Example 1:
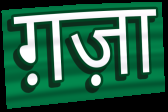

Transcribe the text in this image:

ग़ज़ा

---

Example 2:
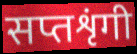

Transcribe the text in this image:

सप्तशृंगी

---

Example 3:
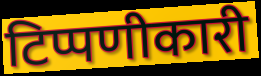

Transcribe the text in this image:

टिप्पणीकारी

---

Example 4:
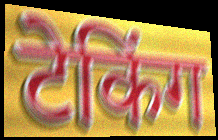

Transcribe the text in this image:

टेकिंग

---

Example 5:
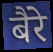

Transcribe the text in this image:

बैरे